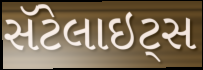
સૅટેલાઇટ્સ